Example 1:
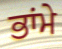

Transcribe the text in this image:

ਭਾਂਮੇ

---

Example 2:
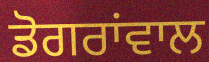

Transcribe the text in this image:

ਡੋਗਰਾਂਵਾਲ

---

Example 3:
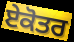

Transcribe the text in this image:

ਏਕੋਤਰ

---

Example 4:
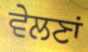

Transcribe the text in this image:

ਵੇਲਣਾਂ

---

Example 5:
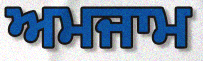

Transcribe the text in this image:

ਅਮਜਾਮ